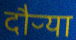
दौऱ्या